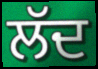
ਲੱਦ